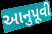
આનુપૂવી